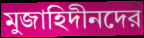
মুজাহিদীনদের